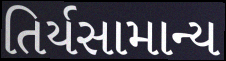
તિર્યસામાન્ય